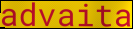
advaita